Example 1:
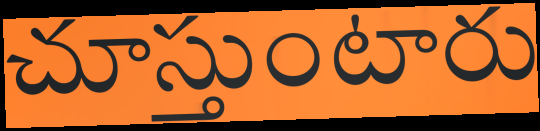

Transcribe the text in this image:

చూస్తుంటారు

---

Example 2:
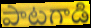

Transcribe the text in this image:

పాటగాడి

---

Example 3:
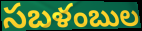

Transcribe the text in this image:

సబళంబుల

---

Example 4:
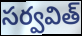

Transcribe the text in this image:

సర్వవిత్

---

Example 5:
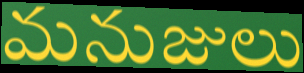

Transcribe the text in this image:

మనుజులు